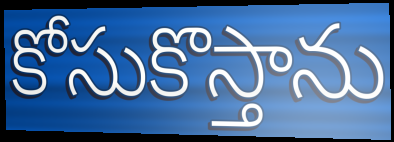
కోసుకొస్తాను